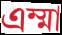
এম্মা